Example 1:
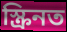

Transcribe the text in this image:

স্ক্ৰিনত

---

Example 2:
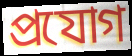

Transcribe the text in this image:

প্ৰযোগ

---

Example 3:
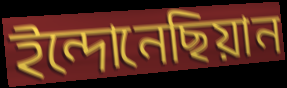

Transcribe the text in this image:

ইন্দোনেছিয়ান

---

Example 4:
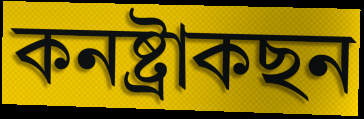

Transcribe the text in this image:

কনষ্ট্ৰাকছন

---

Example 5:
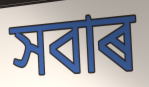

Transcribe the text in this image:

সবাৰ